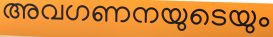
അവഗണനയുടെയും